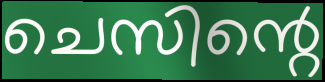
ചെസിന്റെ